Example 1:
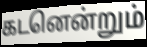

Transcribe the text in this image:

கடனென்றும்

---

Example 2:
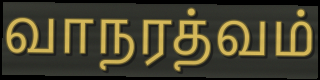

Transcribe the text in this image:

வாநரத்வம்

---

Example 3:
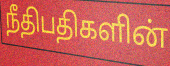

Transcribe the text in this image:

நீதிபதிகளின்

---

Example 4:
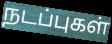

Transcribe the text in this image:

நடப்புகள்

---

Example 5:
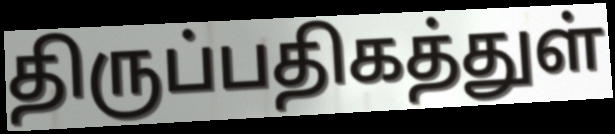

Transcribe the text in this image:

திருப்பதிகத்துள்